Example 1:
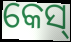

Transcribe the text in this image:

କେସ୍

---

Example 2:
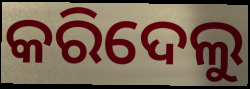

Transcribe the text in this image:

କରିଦେଲୁ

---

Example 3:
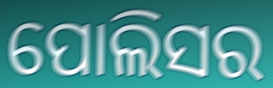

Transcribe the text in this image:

ପୋଲିସର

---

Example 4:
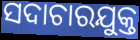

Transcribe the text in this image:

ସଦାଚାରଯୁକ୍ତ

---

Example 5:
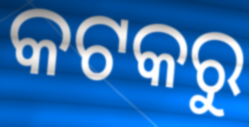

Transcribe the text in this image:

କଟକରୁ